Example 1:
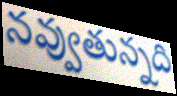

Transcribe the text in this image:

నవ్వుతున్నది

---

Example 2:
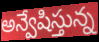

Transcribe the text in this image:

అన్వేషిస్తున్న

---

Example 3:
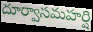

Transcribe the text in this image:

దూర్వాసమహర్షి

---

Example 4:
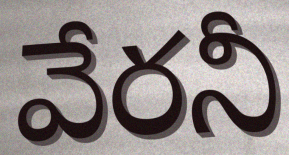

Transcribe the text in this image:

వేరనీ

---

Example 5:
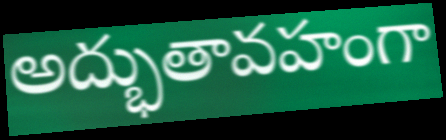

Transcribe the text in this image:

అద్భుతావహంగా